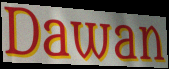
Dawan